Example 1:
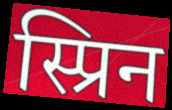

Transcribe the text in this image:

स्प्रिन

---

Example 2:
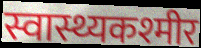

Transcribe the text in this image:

स्वास्थ्यकश्‍मीर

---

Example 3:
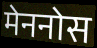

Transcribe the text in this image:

मेननोस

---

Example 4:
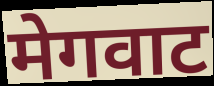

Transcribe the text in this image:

मेगवाट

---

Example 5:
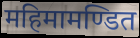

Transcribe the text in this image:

महिमामण्डित